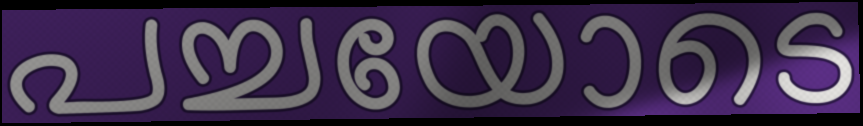
പച്ചയോടെ